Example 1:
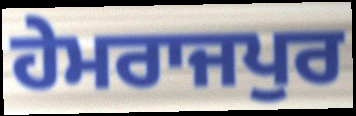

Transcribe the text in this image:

ਹੇਮਰਾਜਪੁਰ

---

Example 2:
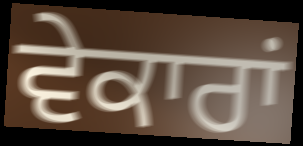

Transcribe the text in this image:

ਵੇਕਾਰਾਂ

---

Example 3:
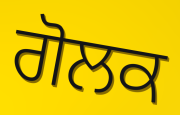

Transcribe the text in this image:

ਗੋਲਕ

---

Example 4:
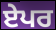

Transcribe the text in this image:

ਏਪਰ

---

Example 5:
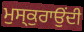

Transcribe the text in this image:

ਮੁਸ੍ਕੁਰਾਉਂਦੀ